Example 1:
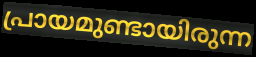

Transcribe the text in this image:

പ്രായമുണ്ടായിരുന്ന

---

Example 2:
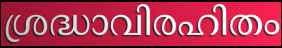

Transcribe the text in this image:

ശ്രദ്ധാവിരഹിതം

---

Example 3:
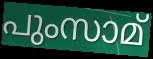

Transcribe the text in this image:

പുംസാമ്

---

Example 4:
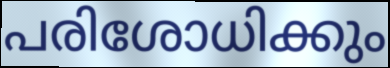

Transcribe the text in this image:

പരിശോധിക്കും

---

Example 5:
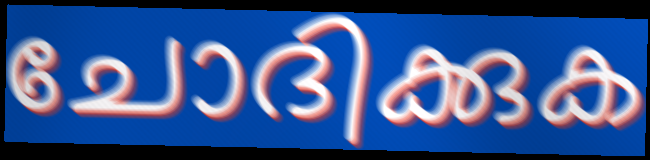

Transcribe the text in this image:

ചോദിക്കുക